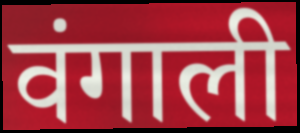
वंगाली